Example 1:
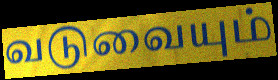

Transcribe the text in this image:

வடுவையும்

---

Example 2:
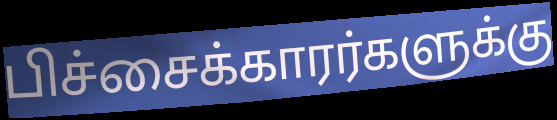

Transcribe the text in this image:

பிச்சைக்காரர்களுக்கு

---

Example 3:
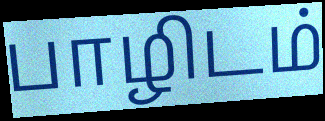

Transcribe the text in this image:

பாழிடம்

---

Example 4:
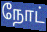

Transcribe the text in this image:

நோட்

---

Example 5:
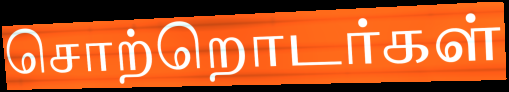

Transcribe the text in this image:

சொற்றொடர்கள்